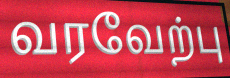
வரவேற்பு